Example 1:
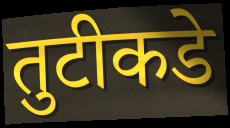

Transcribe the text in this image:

तुटीकडे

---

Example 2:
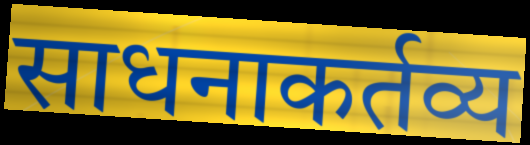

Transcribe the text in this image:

साधनाकर्तव्य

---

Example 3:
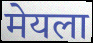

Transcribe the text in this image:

मेयला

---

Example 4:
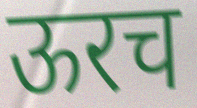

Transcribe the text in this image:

ऊरच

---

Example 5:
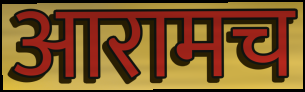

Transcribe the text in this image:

आरामच